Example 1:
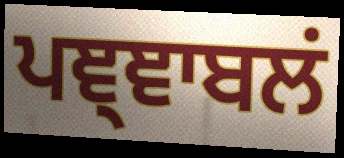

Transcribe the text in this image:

ਪਞ੍ਞਾਬਲਂ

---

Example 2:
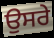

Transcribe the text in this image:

ਉਸਰੇ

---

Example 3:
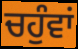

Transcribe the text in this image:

ਚਹੁੰਵਾਂ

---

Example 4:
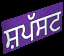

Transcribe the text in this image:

ਸ਼ਪੱਸਟ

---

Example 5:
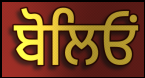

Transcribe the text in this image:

ਬੋਲਿਓਂ